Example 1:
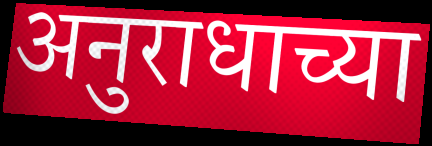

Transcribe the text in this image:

अनुराधाच्या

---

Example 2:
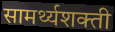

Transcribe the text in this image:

सामर्थ्यशक्ती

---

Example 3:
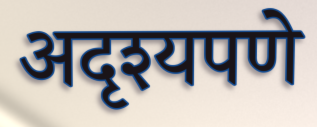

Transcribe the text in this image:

अदृश्यपणे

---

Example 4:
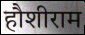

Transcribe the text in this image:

हौशीराम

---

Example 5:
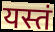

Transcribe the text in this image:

यस्तं